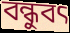
বন্ধুবৎ